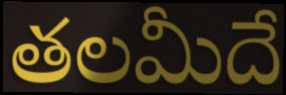
తలమీదే